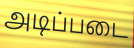
அடிப்படை